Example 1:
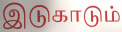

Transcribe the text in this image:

இடுகாடும்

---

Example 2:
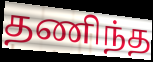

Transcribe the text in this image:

தணிந்த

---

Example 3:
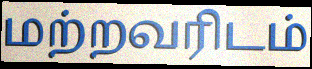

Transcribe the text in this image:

மற்றவரிடம்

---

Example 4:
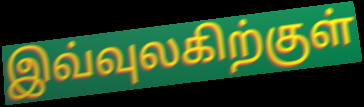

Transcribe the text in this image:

இவ்வுலகிற்குள்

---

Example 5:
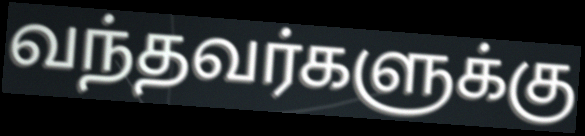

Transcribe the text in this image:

வந்தவர்களுக்கு